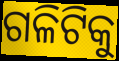
ଗଳିଟିକୁ